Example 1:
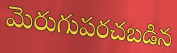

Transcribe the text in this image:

మెరుగుపరచబడిన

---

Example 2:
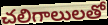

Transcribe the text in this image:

చలిగాలులతో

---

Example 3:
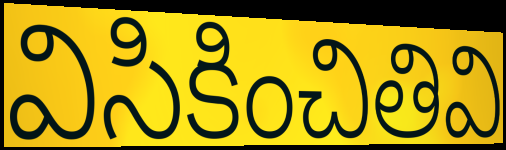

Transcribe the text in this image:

విసికించితివి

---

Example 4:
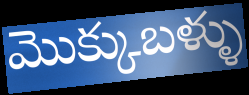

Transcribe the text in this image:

మొక్కుబళ్ళు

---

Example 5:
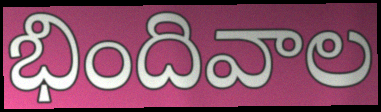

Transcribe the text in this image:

భిందివాల